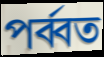
পর্ব্বত